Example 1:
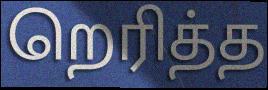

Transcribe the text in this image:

றெரித்த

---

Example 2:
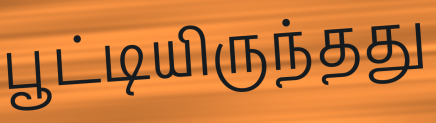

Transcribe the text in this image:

பூட்டியிருந்தது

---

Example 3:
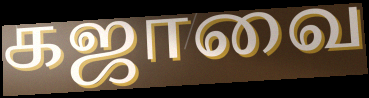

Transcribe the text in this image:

கஜாவை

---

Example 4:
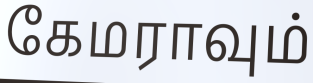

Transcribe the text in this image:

கேமராவும்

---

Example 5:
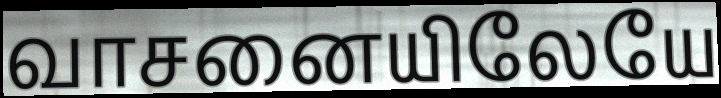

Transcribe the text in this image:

வாசனையிலேயே